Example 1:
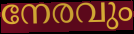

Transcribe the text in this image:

നേരവും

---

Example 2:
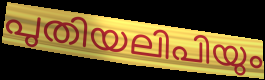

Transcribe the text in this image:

പുതിയലിപിയും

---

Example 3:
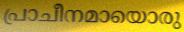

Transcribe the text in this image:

പ്രാചീനമായൊരു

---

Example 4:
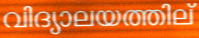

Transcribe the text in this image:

വിദ്യാലയത്തില്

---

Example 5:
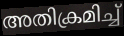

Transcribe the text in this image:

അതിക്രമിച്ച്